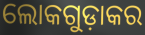
ଲୋକଗୁଡ଼ାକର